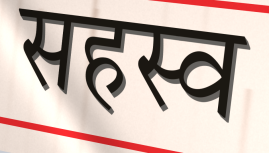
सहस्व